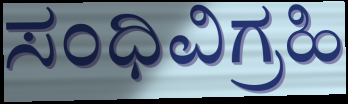
ಸಂಧಿವಿಗ್ರಹಿ